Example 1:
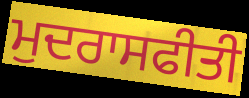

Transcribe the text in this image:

ਮੁਦਰਾਸਫੀਤੀ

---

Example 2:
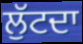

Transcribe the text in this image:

ਲੁੱਟਦਾ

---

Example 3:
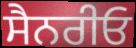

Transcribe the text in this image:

ਸੈਨਰੀਓ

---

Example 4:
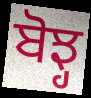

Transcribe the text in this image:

ਬੋਝ੍ਹ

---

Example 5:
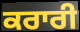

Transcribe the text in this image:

ਕਰਾਰੀ